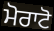
ਮੋਰਾਟੋ